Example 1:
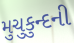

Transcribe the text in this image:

મુચુકુન્દની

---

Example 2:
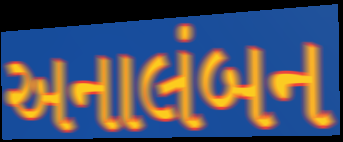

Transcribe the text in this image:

અનાલંબન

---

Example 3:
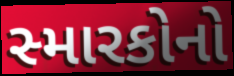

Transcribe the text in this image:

સ્મારકોનો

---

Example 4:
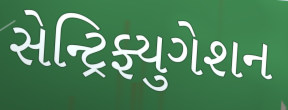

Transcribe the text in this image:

સેન્ટ્રિફ્યુગેશન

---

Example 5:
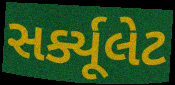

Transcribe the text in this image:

સર્ક્યૂલેટ